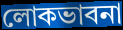
লোকভাবনা